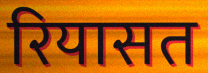
रियासत